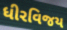
ધીરવિજય